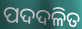
ପଦଦଳିତ